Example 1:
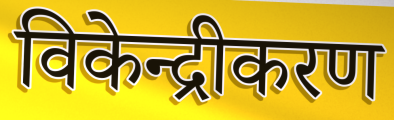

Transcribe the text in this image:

विकेन्द्रीकरण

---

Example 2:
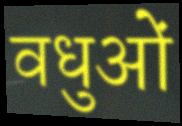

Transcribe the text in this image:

वधुओं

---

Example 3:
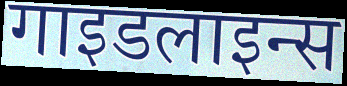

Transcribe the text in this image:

गाइडलाइन्स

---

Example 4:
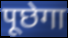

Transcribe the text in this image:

पूछेगा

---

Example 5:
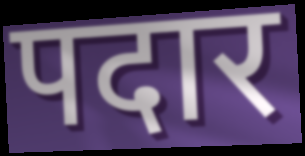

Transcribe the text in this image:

पदार